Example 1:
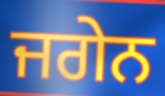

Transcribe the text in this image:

ਜਗੇਨ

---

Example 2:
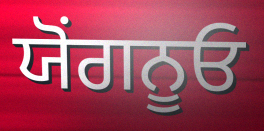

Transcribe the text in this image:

ਯੋਂਗਨੂਓ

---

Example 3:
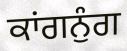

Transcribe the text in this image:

ਕਾਂਗਨੁੰਗ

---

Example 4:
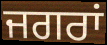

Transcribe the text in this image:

ਜਗਰਾਂ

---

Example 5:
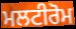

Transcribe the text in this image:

ਮਲਟੀਰੋਮ